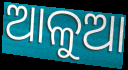
ଆଳୁଆ